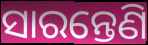
ସାରନ୍ତେଣି